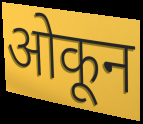
ओकून